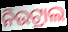
ନିଉଟ୍ରାଲ